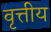
वृत्तीय